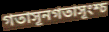
গতাসূনগতাসূংশ্চ